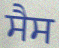
ਸੈਸ